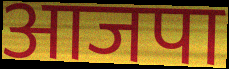
आजपा